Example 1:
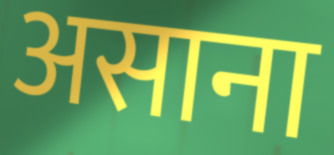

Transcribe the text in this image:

असाना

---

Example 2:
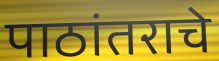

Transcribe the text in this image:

पाठांतराचे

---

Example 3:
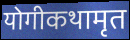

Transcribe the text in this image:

योगीकथामृत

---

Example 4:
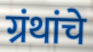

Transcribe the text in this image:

ग्रंथांचे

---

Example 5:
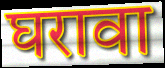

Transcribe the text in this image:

घरावा